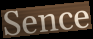
Sence